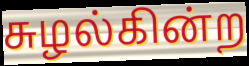
சுழல்கின்ற